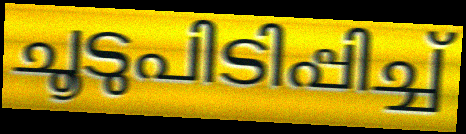
ചൂടുപിടിപ്പിച്ച്